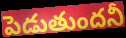
పెడుతుందనీ